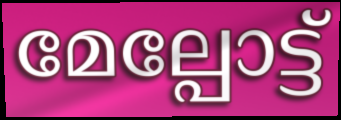
മേല്പോട്ട്